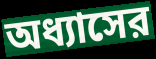
অধ্যাসের